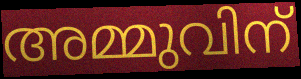
അമ്മുവിന്